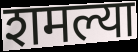
शमल्या